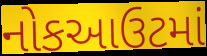
નોકઆઉટમાં